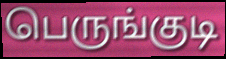
பெருங்குடி